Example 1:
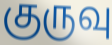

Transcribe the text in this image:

குருவு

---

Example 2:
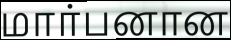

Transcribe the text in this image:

மார்பனான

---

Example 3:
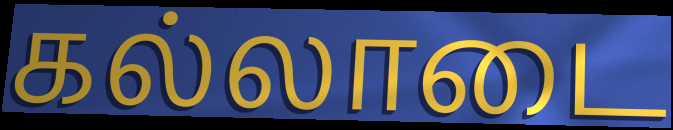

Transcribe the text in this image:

கல்லாடை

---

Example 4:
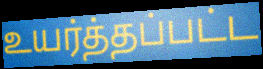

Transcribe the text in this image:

உயர்த்தப்பட்ட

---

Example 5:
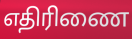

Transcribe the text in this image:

எதிரிணை